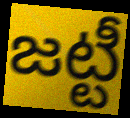
జట్టీ